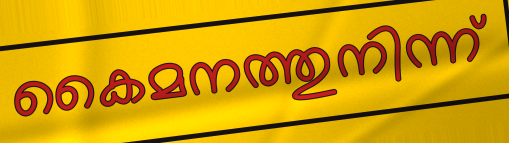
കൈമനത്തുനിന്ന്